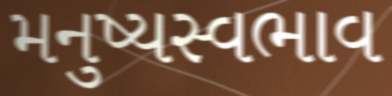
મનુષ્યસ્વભાવ